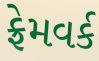
ફ્રેમવર્ક